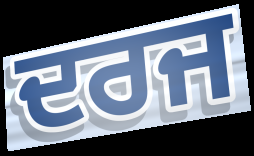
ਦਰਜ